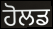
ਹੋਲਡ